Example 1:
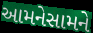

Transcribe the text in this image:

આમનેસામને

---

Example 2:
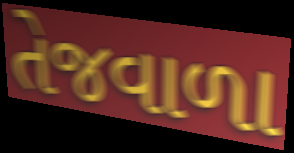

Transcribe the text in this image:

તેજવાળા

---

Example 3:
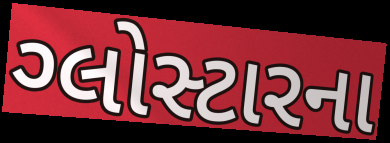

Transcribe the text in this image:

ગ્લોસ્ટારના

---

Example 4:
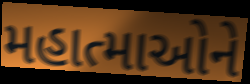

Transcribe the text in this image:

મહાત્માઓને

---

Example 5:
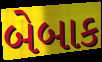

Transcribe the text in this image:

બેબાક